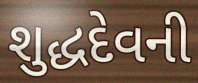
શુદ્ધદેવની